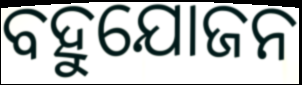
ବହୁଯୋଜନ